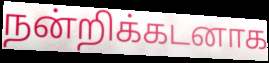
நன்றிக்கடனாக